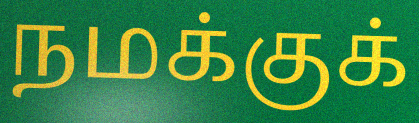
நமக்குக்